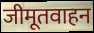
जीमूतवाहन